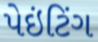
પેઇંટિંગ